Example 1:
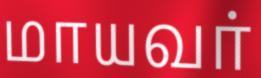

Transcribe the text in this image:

மாயவர்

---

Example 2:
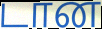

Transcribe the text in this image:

டான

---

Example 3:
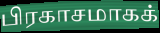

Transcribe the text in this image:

பிரகாசமாகக்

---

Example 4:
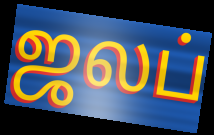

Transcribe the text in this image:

ஜலப்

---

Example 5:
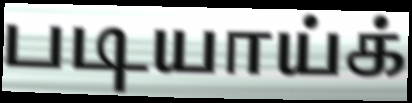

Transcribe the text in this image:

படியாய்க்